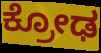
ಕ್ರೋಢ